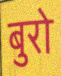
बुरो